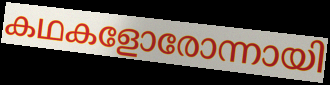
കഥകളോരോന്നായി